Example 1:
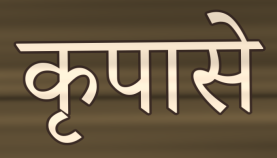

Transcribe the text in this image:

कृपासे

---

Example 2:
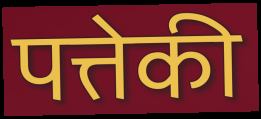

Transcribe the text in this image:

पत्तेकी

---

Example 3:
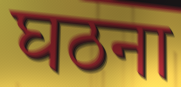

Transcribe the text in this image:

घठना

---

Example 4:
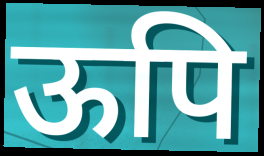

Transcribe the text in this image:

ऊपि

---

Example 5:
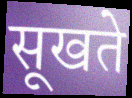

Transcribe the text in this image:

सूखते